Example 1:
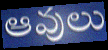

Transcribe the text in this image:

ఆవులు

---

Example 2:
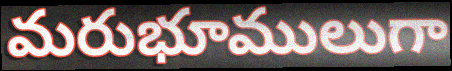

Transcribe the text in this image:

మరుభూములుగా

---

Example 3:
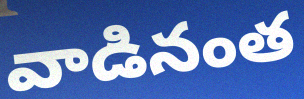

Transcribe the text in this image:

వాడినంత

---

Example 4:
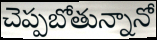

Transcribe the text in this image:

చెప్పబోతున్నానో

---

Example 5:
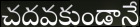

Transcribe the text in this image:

చదవకుండానే